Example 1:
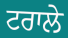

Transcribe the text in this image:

ਟਰਾਲੇ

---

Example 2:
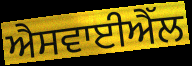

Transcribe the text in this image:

ਐਸਵਾਈਐੱਲ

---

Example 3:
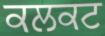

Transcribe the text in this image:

ਕਲਕਟ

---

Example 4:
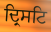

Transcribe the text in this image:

ਦ੍ਰਿਸਟਿ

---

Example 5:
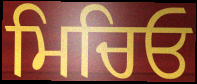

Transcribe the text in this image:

ਮਿਚਿਓ